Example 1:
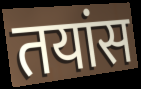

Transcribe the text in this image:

तयांस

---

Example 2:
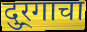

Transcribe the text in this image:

दुर्गाचा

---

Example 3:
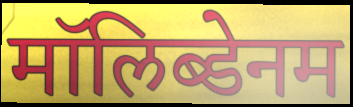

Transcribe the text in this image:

मॉलिब्डेनम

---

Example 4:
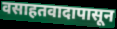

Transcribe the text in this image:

वसाहतवादापासून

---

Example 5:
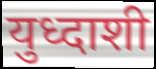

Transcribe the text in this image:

युध्दाशी